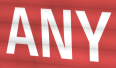
ANY